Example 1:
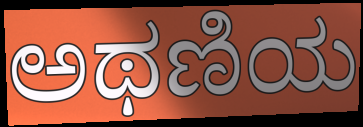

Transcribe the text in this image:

ಅಥಣಿಯ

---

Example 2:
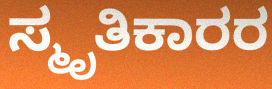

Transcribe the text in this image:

ಸ್ಮೃತಿಕಾರರ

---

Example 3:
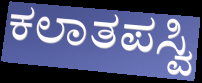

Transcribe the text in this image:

ಕಲಾತಪಸ್ವಿ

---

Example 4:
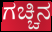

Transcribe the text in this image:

ಗಚ್ಚಿನ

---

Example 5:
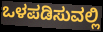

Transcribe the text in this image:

ಒಳಪಡಿಸುವಲ್ಲಿ